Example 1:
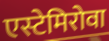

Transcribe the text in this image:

एस्टेमिरोवा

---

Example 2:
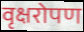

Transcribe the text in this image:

वृक्षरोपण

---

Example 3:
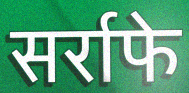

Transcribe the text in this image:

सर्राफे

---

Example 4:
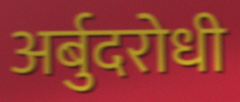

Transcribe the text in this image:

अर्बुदरोधी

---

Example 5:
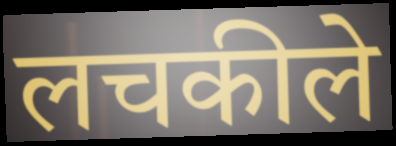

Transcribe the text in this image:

लचकीले